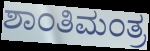
ಶಾಂತಿಮಂತ್ರ